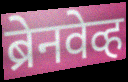
ब्रेनवेव्ह